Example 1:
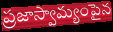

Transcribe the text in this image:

ప్రజాస్వామ్యంపైన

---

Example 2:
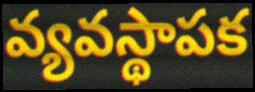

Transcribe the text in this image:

వ్యవస్థాపక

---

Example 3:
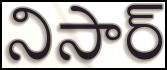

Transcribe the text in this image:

నిసార్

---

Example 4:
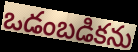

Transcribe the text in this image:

ఒడంబడికను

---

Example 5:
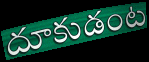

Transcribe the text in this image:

దూకుడంట